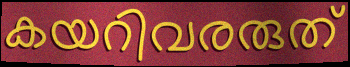
കയറിവരരുത്